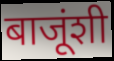
बाजूंशी